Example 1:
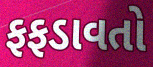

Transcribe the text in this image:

ફફડાવતો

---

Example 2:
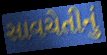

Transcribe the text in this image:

સાવચેતીનું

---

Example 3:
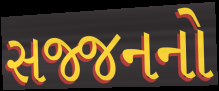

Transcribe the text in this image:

સજ્જનનો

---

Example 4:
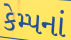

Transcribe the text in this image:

કેમ્પનાં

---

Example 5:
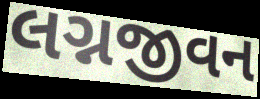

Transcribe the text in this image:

લગ્નજીવન